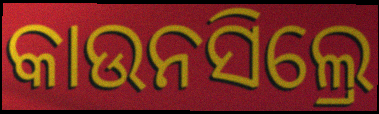
କାଉନସିଲ୍ରେ